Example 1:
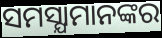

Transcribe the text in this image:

ସମସ୍ଯାମାନଙ୍କର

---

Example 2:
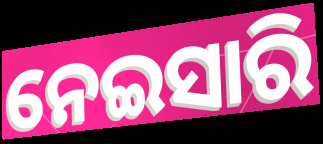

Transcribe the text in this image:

ନେଇସାରି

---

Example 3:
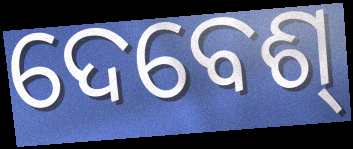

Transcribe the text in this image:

ଦେବେଶ୍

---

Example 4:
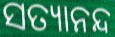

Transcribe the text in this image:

ସତ୍ୟାନନ୍ଦ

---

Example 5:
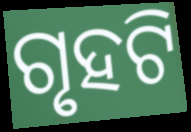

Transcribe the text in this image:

ଗୃହଟି